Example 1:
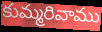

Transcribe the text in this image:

కుమ్మరివాము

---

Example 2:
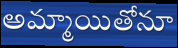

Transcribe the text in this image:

అమ్మాయితోనూ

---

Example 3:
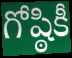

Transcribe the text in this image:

గోష్ఠికీ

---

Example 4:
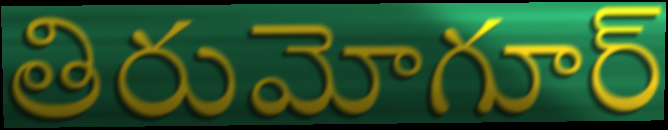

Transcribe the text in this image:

తిరుమోగూర్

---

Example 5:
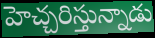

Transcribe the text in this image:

హెచ్చరిస్తున్నాడు